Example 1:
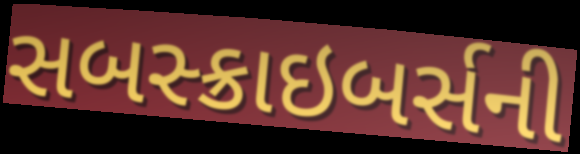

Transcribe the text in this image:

સબસ્ક્રાઇબર્સની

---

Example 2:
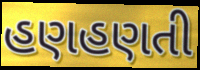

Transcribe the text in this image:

હણહણતી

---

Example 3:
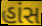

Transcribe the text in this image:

હાંસ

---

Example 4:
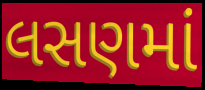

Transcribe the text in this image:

લસણમાં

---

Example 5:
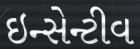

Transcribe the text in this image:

ઇન્સેન્ટીવ